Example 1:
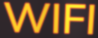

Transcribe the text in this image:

WIFI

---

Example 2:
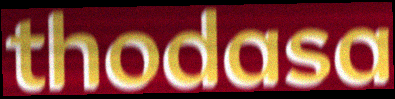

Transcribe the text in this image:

thodasa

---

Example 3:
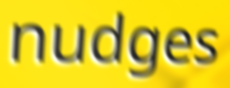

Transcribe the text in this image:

nudges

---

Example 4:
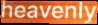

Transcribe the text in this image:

heavenly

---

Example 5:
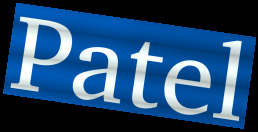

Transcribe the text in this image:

Patel